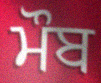
ਮੌਬ